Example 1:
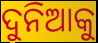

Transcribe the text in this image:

ଦୁନିଆକୁ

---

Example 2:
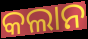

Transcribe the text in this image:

କଲାନ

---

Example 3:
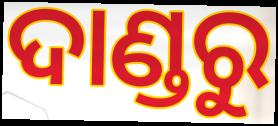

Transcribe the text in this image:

ଦାଣ୍ଡରୁ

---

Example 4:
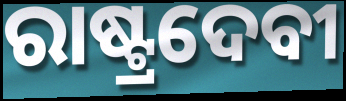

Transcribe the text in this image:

ରାଷ୍ଟ୍ରଦେବୀ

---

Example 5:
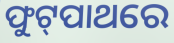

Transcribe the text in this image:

ଫୁଟ୍‍ପାଥରେ